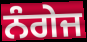
ਨੰਗੇਜ